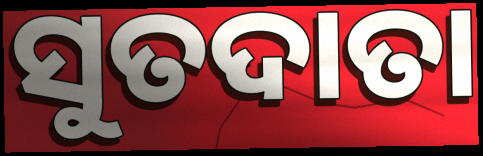
ସୁତଦାତା